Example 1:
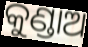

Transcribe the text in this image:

କୁଣ୍ଡାଅ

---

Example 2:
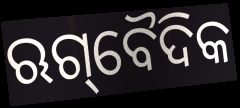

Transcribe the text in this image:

ଋଗ୍‌ବୈଦିକ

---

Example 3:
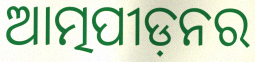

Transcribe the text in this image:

ଆତ୍ମପୀଡ଼ନର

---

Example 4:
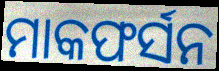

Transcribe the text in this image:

ମାକଫର୍ସନ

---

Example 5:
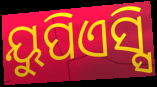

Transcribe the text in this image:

ୟୁପିଏସ୍ସି